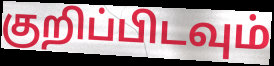
குறிப்பிடவும்